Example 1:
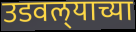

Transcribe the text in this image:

उडवल्याच्या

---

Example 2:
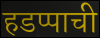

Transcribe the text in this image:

हडप्पाची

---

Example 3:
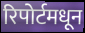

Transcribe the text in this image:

रिपोर्टमधून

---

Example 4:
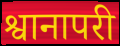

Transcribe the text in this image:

श्वानापरी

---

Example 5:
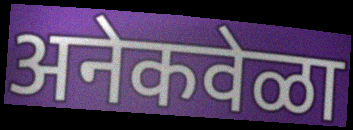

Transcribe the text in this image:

अनेकवेळा